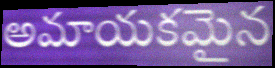
అమాయకమైన